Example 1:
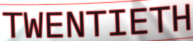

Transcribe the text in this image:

TWENTIETH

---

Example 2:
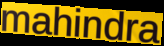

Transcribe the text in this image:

mahindra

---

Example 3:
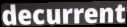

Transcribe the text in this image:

decurrent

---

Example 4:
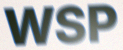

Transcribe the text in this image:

WSP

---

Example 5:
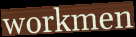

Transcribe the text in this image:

workmen